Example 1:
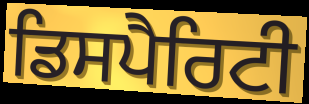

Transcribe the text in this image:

ਡਿਸਪੈਰਿਟੀ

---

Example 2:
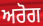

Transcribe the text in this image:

ਅਰੋਗ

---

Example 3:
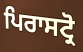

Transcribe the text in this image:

ਪਿਰਾਸਟ੍ਰੋ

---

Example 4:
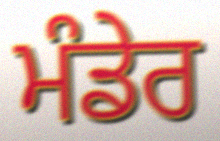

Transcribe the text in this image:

ਮੰਡੇਰ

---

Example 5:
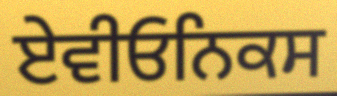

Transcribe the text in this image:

ਏਵੀਓਨਿਕਸ